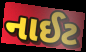
નાઈટ